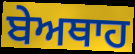
ਬੇਅਥਾਹ